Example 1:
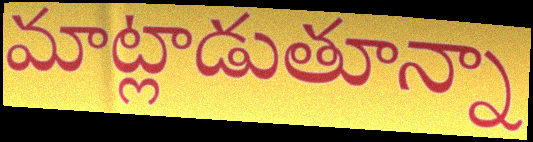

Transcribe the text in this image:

మాట్లాడుతూన్నా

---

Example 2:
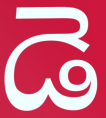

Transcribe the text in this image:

డె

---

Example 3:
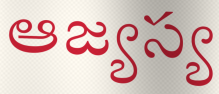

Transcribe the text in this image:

ఆజ్యస్య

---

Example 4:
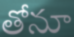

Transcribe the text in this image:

తోనూ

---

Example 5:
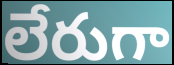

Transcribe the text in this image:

లేరుగా